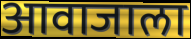
आवाजाला